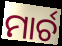
ମାର୍ଚ